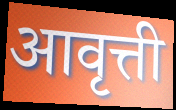
आवृत्ती